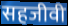
सहजीवी